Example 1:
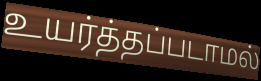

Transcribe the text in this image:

உயர்த்தப்படாமல்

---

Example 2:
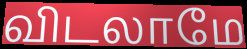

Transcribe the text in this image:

விடலாமே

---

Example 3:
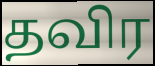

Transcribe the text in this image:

தவிர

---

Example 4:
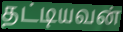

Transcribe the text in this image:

தட்டியவன்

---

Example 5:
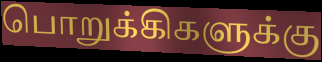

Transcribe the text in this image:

பொறுக்கிகளுக்கு